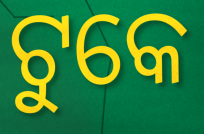
ଟୁକେ